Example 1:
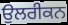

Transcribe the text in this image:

ਉਲਰੀਕਨ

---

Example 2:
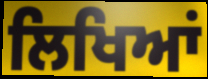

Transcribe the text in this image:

ਲਿਖਿਆਂ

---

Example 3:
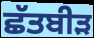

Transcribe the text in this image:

ਛੱਤਬੀੜ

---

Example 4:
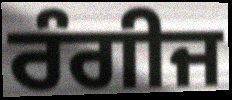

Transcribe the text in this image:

ਰੰਗੀਜ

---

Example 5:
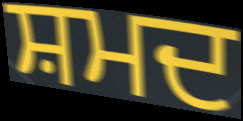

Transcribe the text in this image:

ਸ਼ਮਦ